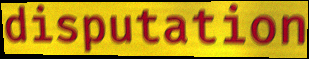
disputation